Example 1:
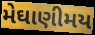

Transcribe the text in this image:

મેઘાણીમય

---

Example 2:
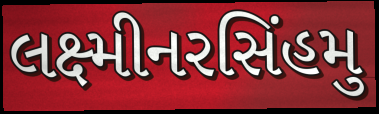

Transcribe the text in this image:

લક્ષ્મીનરસિંહમુ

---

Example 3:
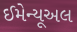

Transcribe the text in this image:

ઈમેન્યૂઅલ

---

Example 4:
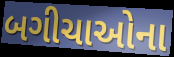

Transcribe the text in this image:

બગીચાઓના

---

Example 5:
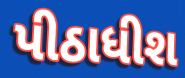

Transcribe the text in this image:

પીઠાધીશ